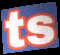
ts